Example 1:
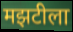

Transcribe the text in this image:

मझटीला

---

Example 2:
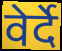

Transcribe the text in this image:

वेर्दे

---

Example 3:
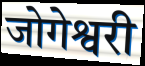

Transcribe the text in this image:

जोगेश्वरी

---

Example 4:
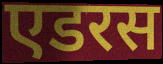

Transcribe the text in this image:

एडरस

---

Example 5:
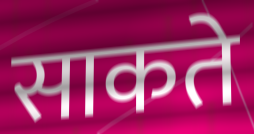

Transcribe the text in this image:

साकते